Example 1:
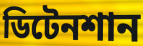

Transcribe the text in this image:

ডিটেনশান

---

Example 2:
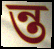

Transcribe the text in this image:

ন্ত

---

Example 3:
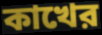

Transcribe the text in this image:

কাখের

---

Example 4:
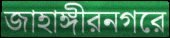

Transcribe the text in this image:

জাহাঙ্গীরনগরে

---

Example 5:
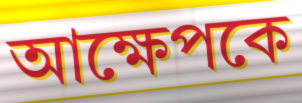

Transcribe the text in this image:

আক্ষেপকে